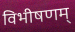
विभीषणम्